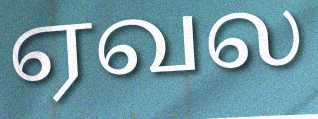
ஏவல